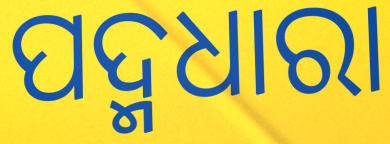
ପଦ୍ମଧାରା